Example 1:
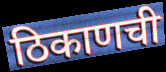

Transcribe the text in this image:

ठिकाणची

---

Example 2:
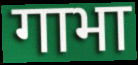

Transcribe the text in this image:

गाभा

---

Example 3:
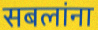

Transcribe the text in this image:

सबलांना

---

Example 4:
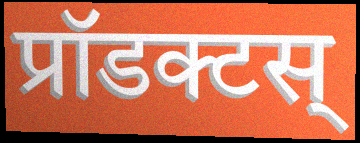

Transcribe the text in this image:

प्रॉडक्टस्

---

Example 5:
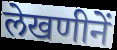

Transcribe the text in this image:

लेखणीनें